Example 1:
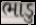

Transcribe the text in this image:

ભાડુ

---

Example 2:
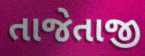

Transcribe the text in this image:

તાજેતાજી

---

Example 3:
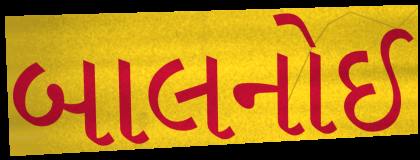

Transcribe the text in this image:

બાલનોઈ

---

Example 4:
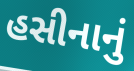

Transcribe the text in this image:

હસીનાનું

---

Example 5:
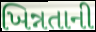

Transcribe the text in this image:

ખિન્નતાની